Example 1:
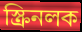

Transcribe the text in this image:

স্ক্রিনলক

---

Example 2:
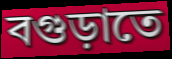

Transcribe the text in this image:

বগুড়াতে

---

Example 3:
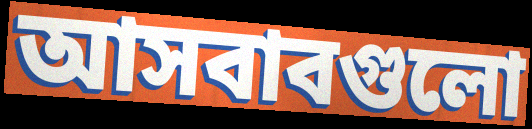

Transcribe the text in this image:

আসবাবগুলো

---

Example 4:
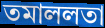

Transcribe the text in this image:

তমাললতা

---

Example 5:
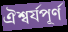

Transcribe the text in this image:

ঐশ্বর্যপূর্ণ